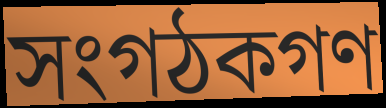
সংগঠকগণ